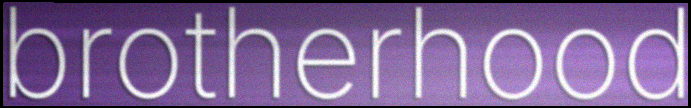
brotherhood